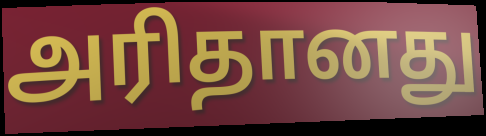
அரிதானது